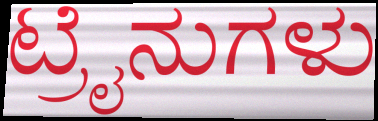
ಟ್ರೈನುಗಳು